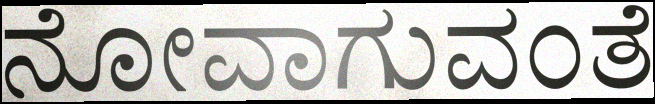
ನೋವಾಗುವಂತೆ